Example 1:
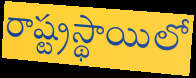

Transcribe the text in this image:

రాష్ట్రస్థాయిలో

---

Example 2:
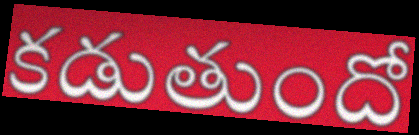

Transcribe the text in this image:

కడుతుందో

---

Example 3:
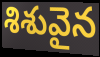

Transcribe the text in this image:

శిశువైన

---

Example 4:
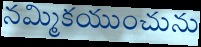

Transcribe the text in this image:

నమ్మికయుంచును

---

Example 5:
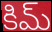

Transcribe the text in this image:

కిమ్